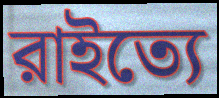
রাইত্যে